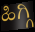
ಹಿಗ್ಗಿ